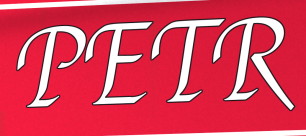
PETR